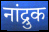
नांद्रुक